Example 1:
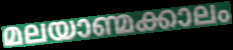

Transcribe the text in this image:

മലയാണ്മക്കാലം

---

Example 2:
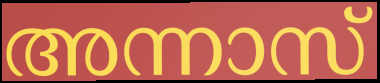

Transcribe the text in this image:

അന്നാസ്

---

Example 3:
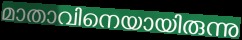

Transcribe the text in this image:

മാതാവിനെയായിരുന്നു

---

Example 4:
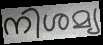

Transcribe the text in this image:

നിശമ്യ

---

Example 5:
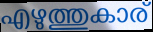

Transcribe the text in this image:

എഴുത്തുകാര്